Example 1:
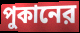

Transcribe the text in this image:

পুকানের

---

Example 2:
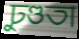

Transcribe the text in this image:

ঢুণ্ডতা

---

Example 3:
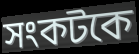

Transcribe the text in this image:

সংকটকে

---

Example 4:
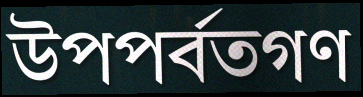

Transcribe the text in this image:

উপপর্বতগণ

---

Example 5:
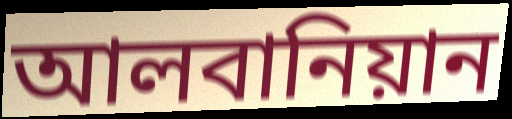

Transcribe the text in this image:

আলবানিয়ান